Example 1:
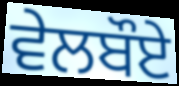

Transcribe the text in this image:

ਵੇਲਬੌਏ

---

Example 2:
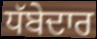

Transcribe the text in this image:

ਧੱਬੇਦਾਰ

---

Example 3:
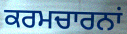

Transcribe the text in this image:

ਕਰਮਚਾਰਨਾਂ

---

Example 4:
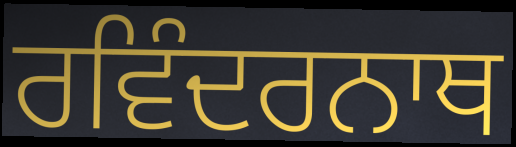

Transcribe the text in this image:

ਰਵਿੰਦਰਨਾਥ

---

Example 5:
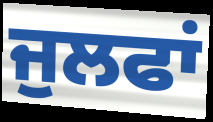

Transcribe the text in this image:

ਜੁਲਫਾਂ